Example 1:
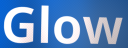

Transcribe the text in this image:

Glow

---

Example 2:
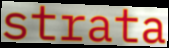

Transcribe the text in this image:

strata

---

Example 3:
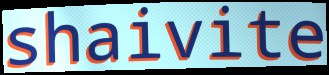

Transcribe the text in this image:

shaivite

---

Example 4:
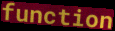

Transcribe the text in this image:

function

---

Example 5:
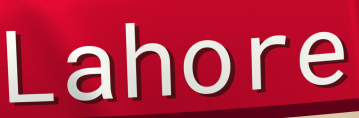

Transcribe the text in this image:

Lahore